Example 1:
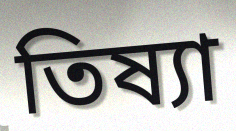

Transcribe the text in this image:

তিষ্যা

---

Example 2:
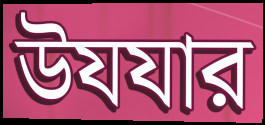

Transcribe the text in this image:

উযযার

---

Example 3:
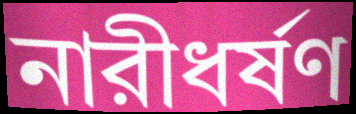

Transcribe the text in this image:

নারীধর্ষণ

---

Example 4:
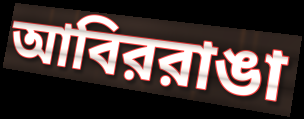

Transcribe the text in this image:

আবিররাঙা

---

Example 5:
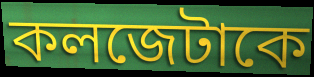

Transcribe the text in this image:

কলজেটাকে